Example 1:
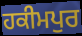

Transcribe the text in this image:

ਹਕੀਮਪੁਰ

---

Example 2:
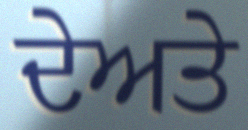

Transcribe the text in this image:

ਦੇਅਤੇ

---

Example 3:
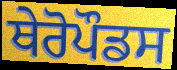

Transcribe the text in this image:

ਥੇਰੋਪੌਡਸ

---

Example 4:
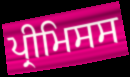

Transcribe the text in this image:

ਪ੍ਰੀਮਿਸਸ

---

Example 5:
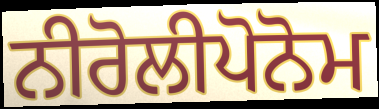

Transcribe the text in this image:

ਨੀਰੋਲੀਪੋਨੋਮ